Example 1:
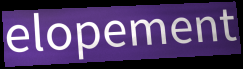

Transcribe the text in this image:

elopement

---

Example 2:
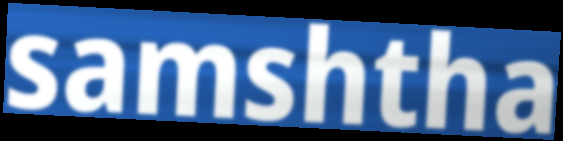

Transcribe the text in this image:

samshtha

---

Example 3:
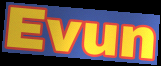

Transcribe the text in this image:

Evun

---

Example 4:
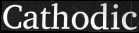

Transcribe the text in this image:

Cathodic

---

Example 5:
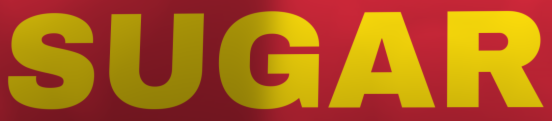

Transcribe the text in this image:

SUGAR